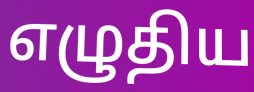
எழுதிய